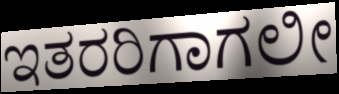
ಇತರರಿಗಾಗಲೀ